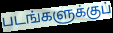
படங்களுக்குப்